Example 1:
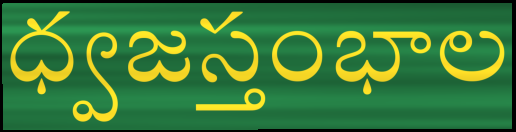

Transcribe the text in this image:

ధ్వజస్తంభాల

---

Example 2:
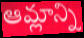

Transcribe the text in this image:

ఆమ్లాన్ని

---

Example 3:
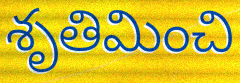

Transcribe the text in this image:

శృతిమించి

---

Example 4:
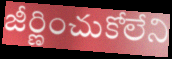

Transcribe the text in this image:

జీర్ణించుకోలేని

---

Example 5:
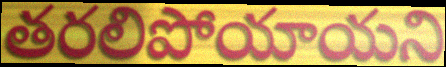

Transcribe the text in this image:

తరలిపోయాయని